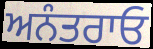
ਅਨੰਤਰਾਓ